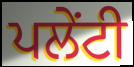
ਪਲੇਂਟੀ